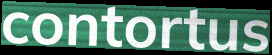
contortus